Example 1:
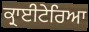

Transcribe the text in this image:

ਕ੍ਰਾਈਟੇਰਿਆ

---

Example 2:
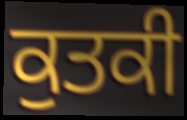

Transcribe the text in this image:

ਕੁਤਕੀ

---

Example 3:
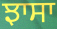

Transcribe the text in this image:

ਝਾਸਾ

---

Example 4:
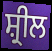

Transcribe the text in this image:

ਸ਼੍ਰੀਲ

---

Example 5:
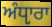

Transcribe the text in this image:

ਅੰਧੵਾਰਾ